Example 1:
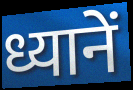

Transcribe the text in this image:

ध्यानें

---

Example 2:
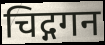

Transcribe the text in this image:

चिद्गगन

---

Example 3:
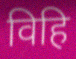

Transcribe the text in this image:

विहि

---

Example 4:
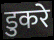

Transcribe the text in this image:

डुकरे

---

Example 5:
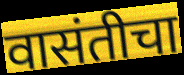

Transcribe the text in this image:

वासंतीचा